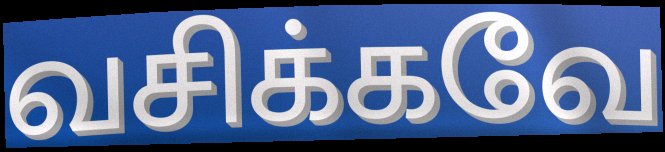
வசிக்கவே